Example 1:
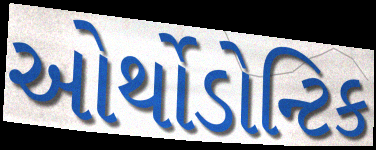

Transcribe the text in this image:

ઓર્થોડોન્ટિક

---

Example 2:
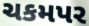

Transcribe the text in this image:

ચકમપર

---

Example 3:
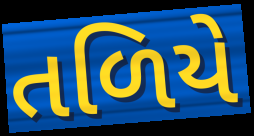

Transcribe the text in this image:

તળિયે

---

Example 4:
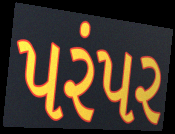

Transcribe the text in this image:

પરંપર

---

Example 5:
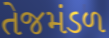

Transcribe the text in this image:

તેજમંડળ